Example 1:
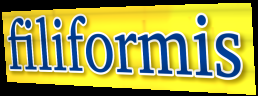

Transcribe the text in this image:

filiformis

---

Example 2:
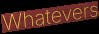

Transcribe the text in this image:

Whatevers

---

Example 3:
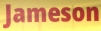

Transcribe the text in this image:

Jameson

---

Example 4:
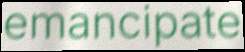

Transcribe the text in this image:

emancipate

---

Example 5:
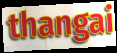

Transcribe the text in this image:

thangai